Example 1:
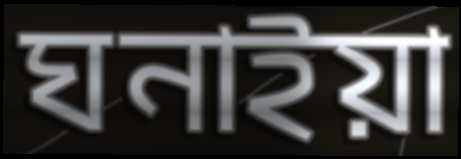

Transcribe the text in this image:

ঘনাইয়া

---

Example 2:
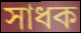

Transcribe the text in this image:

সাধক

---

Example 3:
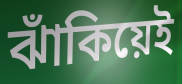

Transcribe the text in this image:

ঝাঁকিয়েই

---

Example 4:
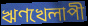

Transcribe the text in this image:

ঋণখেলাপী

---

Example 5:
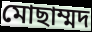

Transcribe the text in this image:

মোছাম্মদ